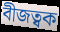
বীজত্বক